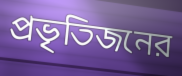
প্রভৃতিজনের